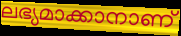
ലഭ്യമാക്കാനാണ്